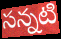
సన్నటి